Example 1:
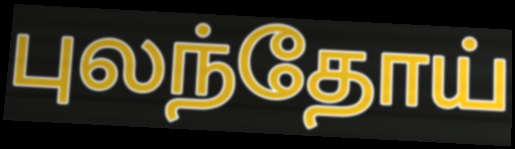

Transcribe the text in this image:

புலந்தோய்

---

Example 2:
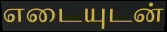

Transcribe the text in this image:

எடையுடன்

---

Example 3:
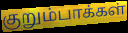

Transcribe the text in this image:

குறும்பாக்கள்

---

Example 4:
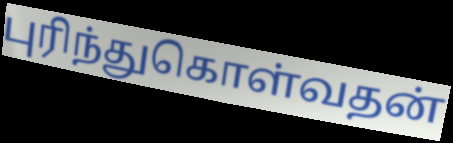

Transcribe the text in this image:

புரிந்துகொள்வதன்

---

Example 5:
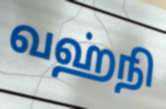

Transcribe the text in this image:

வஹ்நி